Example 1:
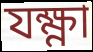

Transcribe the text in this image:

যক্ষ্ণা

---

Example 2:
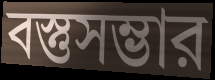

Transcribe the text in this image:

বস্তুসম্ভার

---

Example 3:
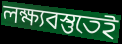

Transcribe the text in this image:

লক্ষ্যবস্তুতেই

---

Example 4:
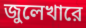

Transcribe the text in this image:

জুলেখারে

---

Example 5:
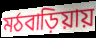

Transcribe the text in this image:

মঠবাড়িয়ায়